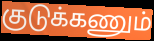
குடுக்கணும்